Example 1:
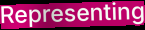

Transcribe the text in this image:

Representing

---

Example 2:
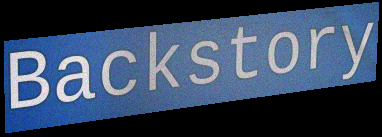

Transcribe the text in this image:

Backstory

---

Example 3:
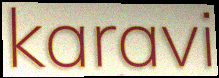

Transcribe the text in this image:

karavi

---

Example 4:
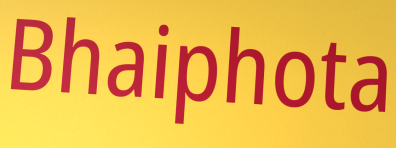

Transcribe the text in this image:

Bhaiphota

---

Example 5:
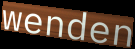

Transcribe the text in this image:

wenden